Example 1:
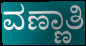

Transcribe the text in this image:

ವಣ್ಣಾತಿ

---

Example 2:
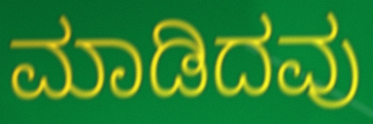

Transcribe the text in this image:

ಮಾಡಿದವು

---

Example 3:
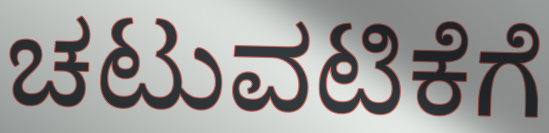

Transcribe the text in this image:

ಚಟುವಟಿಕೆಗೆ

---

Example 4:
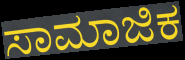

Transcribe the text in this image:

ಸಾಮಾಜಿಕ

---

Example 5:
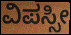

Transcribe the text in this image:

ವಿಪಸ್ಸೀ